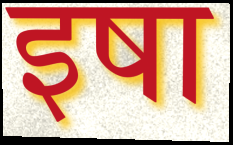
इषा